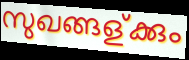
സുഖങ്ങള്ക്കും